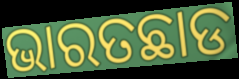
ଭାରତଛାଡ